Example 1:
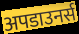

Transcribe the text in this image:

अपडाउनर्स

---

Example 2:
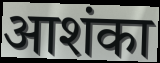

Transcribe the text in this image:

आशंका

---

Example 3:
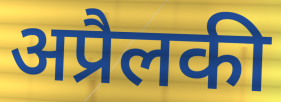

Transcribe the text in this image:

अप्रैलकी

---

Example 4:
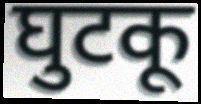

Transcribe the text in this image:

घुटकू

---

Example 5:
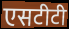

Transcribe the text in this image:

एसटीटी